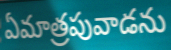
ఏమాత్రపువాడను